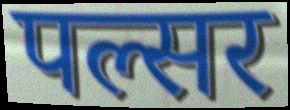
पल्सर